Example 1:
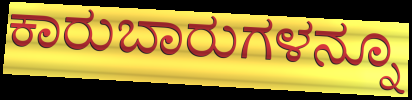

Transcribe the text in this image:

ಕಾರುಬಾರುಗಳನ್ನೂ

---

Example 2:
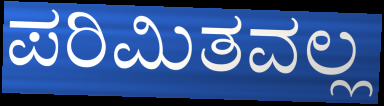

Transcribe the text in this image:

ಪರಿಮಿತವಲ್ಲ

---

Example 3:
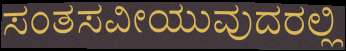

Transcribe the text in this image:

ಸಂತಸವೀಯುವುದರಲ್ಲಿ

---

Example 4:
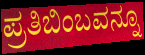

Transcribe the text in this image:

ಪ್ರತಿಬಿಂಬವನ್ನೂ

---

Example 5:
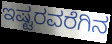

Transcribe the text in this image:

ಇಷ್ಟರವರೆಗಿನ